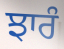
ਝਾਰੰ